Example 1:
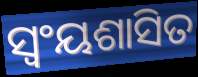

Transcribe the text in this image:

ସ୍ୱଂୟଶାସିତ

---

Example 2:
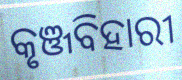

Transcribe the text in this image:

କୃଞ୍ଜବିହାରୀ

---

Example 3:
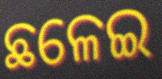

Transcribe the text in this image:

ଛଳେଇ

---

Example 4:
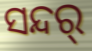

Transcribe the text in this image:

ସନ୍ଦର୍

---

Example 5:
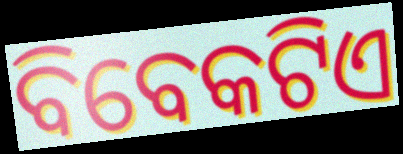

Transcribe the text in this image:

ବିବେକଟିଏ